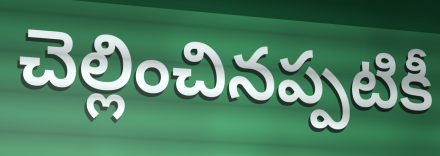
చెల్లించినప్పటికీ